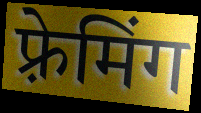
फ़्रेमिंग